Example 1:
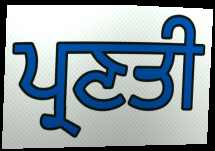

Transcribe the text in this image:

ਪ੍ਰਣਤੀ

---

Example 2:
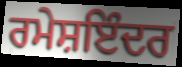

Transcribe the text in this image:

ਰਮੇਸ਼ਇੰਦਰ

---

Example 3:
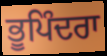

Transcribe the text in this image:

ਭੂਪਿੰਦਰਾ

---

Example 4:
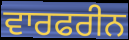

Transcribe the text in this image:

ਵਾਰਫਰੀਨ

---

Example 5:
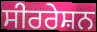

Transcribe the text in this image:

ਸੀਰਰੇਸ਼ਨ